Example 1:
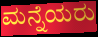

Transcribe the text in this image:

ಮನ್ನೆಯರು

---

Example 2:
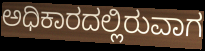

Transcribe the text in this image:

ಅಧಿಕಾರದಲ್ಲಿರುವಾಗ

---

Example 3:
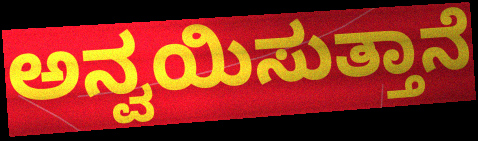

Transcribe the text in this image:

ಅನ್ವಯಿಸುತ್ತಾನೆ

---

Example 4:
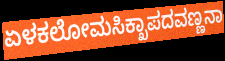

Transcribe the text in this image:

ಏಳಕಲೋಮಸಿಕ್ಖಾಪದವಣ್ಣನಾ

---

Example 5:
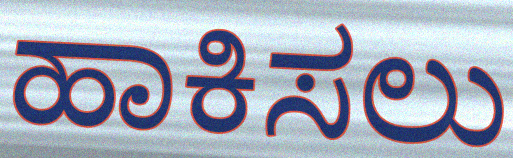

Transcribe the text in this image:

ಹಾಕಿಸಲು